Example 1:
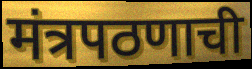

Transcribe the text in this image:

मंत्रपठणाची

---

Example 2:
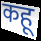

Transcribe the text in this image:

कहू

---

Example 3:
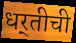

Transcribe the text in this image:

धर्तीची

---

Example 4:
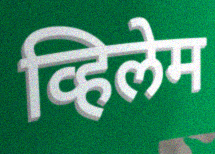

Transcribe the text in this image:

व्हिलेम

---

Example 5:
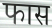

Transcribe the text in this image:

फास